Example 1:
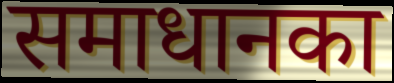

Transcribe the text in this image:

समाधानका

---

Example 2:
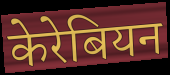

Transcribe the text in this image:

केरेबियन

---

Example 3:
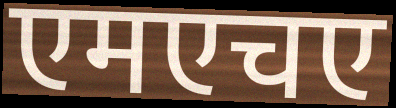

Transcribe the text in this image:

एमएचए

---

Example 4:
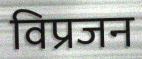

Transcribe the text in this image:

विप्रजन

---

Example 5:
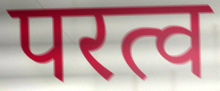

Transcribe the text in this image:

परत्व